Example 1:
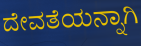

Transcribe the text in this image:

ದೇವತೆಯನ್ನಾಗಿ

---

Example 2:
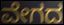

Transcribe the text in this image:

ವೇಗದ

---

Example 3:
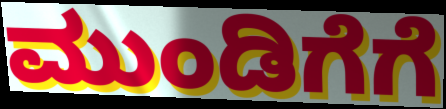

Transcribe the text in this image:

ಮುಂಡಿಗೆಗೆ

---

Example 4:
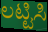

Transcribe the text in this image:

ಲಟ್ಟಿಸಿ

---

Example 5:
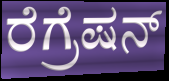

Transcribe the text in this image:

ರೆಗ್ರೆಷನ್